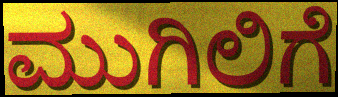
ಮುಗಿಲಿಗೆ